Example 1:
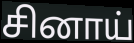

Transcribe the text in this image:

சினாய்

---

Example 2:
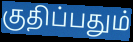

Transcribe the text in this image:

குதிப்பதும்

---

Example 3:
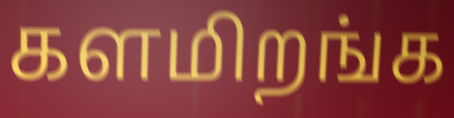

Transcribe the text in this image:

களமிறங்க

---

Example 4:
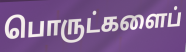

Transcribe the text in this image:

பொருட்களைப்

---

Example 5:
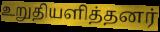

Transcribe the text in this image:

உறுதியளித்தனர்